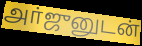
அர்ஜுனுடன்